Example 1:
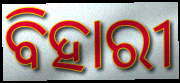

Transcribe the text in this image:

ବିହାରୀ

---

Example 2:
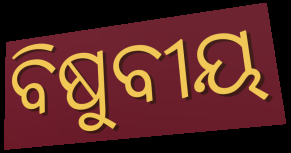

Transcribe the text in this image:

ବିଷୁବୀୟ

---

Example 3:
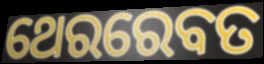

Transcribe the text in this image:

ଥେରରେବତ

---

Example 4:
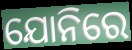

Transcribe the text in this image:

ଯୋନିରେ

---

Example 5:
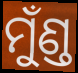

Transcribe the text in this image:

ମୁଁଣ୍ଡ